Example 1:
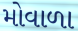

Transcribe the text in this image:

મોવાળા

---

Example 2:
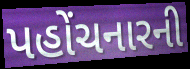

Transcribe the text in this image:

પહોંચનારની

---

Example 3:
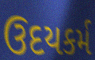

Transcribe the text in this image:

ઉદયકર્મ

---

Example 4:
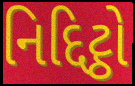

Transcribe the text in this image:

નિદ્દિટ્ઠો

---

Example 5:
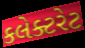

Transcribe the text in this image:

કલેક્ટરેટ